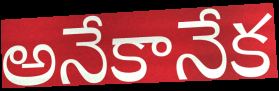
అనేకానేక